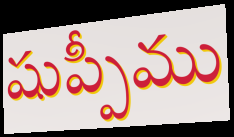
షుప్పీము